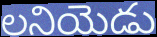
లనియెడు